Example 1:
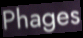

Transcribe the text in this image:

Phages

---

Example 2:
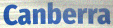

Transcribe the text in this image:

Canberra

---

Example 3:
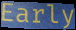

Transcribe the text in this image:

Early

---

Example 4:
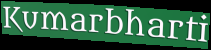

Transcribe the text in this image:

Kumarbharti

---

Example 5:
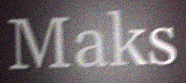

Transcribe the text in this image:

Maks